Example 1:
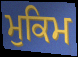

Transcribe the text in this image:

ਮੁਕਿਮ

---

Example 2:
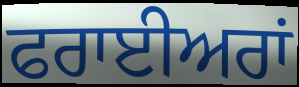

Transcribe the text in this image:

ਫਰਾਈਅਰਾਂ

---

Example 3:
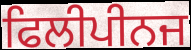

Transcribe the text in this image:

ਫਿਲੀਪੀਨਜ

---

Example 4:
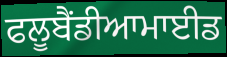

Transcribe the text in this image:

ਫਲੂਬੈਂਡੀਆਮਾਈਡ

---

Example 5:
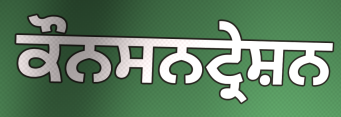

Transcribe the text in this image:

ਕੌਨਸਨਟ੍ਰੇਸ਼ਨ